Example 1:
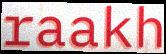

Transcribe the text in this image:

raakh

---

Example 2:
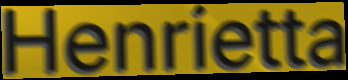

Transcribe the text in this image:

Henrietta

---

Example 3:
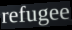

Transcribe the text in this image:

refugee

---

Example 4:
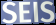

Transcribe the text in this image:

SEIS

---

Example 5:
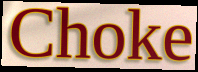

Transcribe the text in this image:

Choke